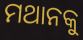
ମଥାନକୁ